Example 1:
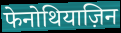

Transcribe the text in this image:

फेनोथियाज़िन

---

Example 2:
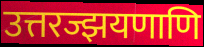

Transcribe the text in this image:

उत्तरज्झयणाणि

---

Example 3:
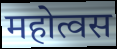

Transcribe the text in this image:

महोत्वस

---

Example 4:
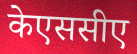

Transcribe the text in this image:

केएससीए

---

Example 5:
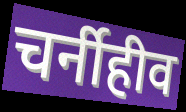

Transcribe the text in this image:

चर्नीहीव